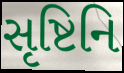
સૃષ્ટિનિ